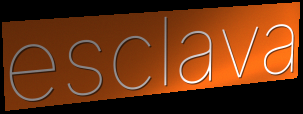
esclava